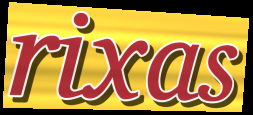
rixas